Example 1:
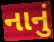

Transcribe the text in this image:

નાનું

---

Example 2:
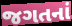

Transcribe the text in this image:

જગતનાં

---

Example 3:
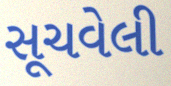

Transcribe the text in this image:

સૂચવેલી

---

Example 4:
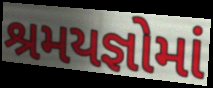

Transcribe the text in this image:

શ્રમયજ્ઞોમાં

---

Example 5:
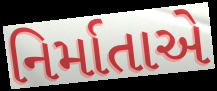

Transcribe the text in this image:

નિર્માતાએ